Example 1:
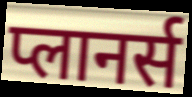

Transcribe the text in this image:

प्लानर्स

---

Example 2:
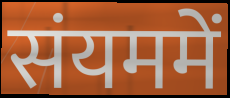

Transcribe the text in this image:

संयममें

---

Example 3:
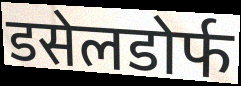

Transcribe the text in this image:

डसेलडोर्फ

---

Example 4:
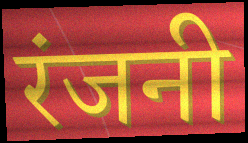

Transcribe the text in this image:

रंजनी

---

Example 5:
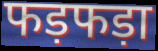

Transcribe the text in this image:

फड़फड़ा